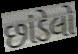
છાંડેલો